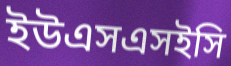
ইউএসএসইসি